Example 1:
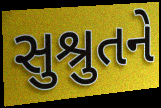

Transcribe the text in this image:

સુશ્રુતને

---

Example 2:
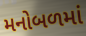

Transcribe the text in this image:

મનોબળમાં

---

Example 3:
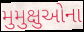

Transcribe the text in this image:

મુમુક્ષુઓના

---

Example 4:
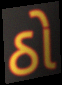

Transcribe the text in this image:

ઠો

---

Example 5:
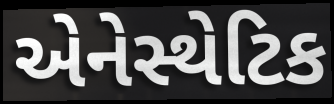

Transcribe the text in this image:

એનેસ્થેટિક